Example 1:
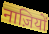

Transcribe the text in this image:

नाज़ियों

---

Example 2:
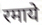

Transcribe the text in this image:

रमाये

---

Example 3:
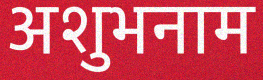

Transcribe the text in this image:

अशुभनाम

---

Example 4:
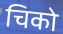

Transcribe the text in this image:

चिको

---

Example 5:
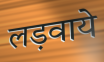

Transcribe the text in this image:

लड़वाये